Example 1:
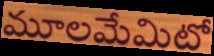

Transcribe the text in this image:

మూలమేమిటో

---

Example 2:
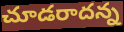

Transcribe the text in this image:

చూడరాదన్న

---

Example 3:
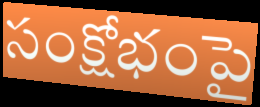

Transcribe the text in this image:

సంక్షోభంపై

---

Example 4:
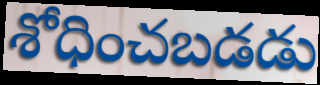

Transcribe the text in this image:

శోధించబడడు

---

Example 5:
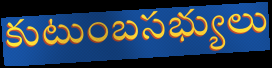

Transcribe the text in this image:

కుటుంబసభ్యులు